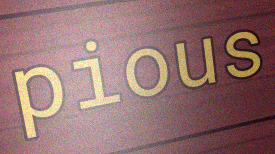
pious